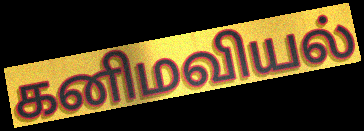
கனிமவியல்